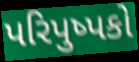
પરિપુષ્પકો